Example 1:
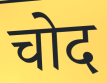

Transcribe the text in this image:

चोद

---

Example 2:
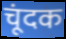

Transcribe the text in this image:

चूंदक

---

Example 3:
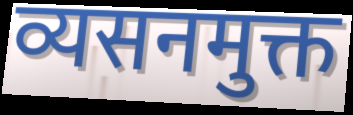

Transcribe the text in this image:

व्यसनमुक्त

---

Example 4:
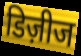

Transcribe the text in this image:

डिज़ीज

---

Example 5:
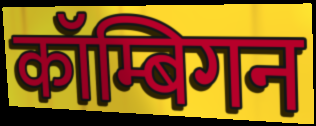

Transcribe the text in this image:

कॉम्बिगन